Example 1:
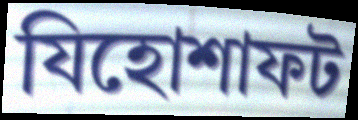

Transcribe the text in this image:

যিহোশাফট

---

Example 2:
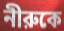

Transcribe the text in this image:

নীরুকে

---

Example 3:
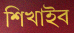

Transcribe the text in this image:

শিখাইব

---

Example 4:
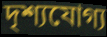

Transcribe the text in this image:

দৃশ্যযোগ্য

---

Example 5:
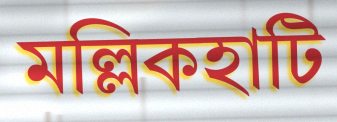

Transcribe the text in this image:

মল্লিকহাটি